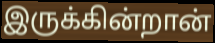
இருக்கின்றான்